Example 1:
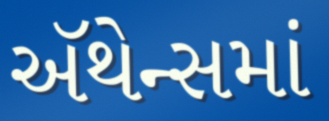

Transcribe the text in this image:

ઍથેન્સમાં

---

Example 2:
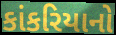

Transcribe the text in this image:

કાંકરિયાનો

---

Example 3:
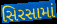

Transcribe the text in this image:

સિરસામાં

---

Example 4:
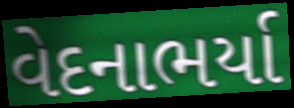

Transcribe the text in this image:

વેદનાભર્યા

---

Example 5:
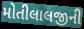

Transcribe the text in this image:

મોતીલાલજીની